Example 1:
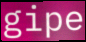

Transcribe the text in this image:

gipe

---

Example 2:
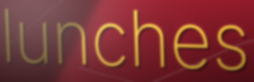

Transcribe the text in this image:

lunches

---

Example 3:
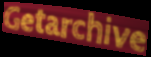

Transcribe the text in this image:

Getarchive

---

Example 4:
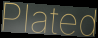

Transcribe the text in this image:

Plated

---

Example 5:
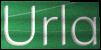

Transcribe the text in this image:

Urla